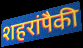
शहरांपैकी